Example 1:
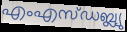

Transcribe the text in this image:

എംഎസ്ഡബ്ല്യു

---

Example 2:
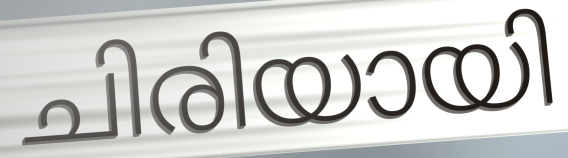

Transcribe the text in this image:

ചിരിയായി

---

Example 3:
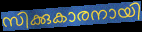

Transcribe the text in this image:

സിക്കുകാരനായി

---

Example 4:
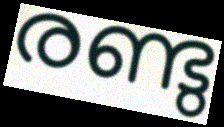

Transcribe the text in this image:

രണ്ടു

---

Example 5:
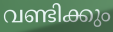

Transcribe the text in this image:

വണ്ടിക്കും